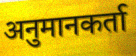
अनुमानकर्ता